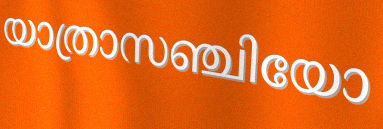
യാത്രാസഞ്ചിയോ